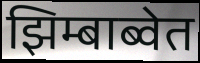
झिम्बाब्वेत